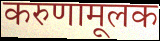
करुणामूलक